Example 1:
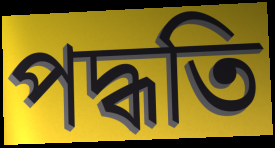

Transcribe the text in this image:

পদ্ধতি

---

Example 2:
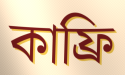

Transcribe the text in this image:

কাফ্রি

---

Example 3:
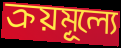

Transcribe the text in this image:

ক্রয়মূল্যে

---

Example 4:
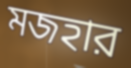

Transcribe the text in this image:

মজহার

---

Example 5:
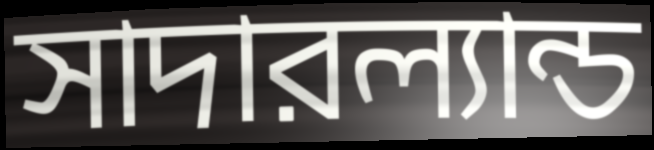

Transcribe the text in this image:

সাদারল্যান্ড